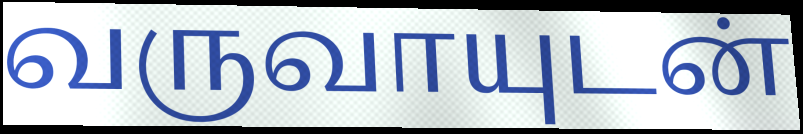
வருவாயுடன்